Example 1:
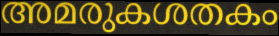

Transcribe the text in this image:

അമരുകശതകം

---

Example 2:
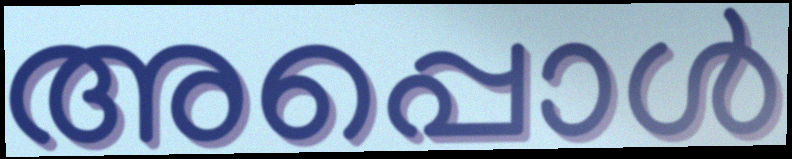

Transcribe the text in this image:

അപ്പൊൾ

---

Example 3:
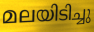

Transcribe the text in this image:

മലയിടിച്ചു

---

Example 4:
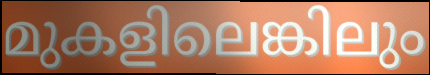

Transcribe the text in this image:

മുകളിലെങ്കിലും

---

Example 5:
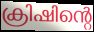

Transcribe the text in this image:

ക്രിഷിന്റെ